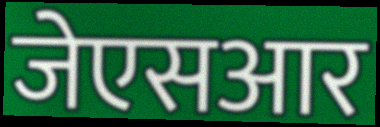
जेएसआर